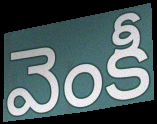
వెంకీ